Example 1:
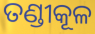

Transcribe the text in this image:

ତଣ୍ଡୀକୂଳ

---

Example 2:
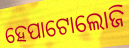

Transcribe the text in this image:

ହେପାଟୋଲୋଜି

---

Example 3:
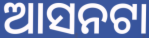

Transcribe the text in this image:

ଆସନଟା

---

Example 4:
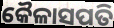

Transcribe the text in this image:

କୈଳାସପତି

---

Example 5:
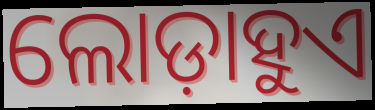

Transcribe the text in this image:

ଲୋଡ଼ାହୁଏ